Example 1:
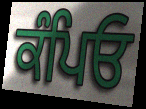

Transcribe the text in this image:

ਕੰਪਿਓ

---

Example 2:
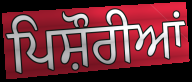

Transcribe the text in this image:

ਪਿਸ਼ੌਰੀਆਂ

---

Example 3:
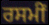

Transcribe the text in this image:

ਰਸਮੀਂ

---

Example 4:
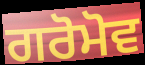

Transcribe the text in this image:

ਗਰੋਮੋਵ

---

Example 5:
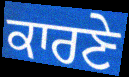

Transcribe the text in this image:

ਕਾਰਣੇ